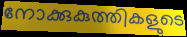
നോക്കുകുത്തികളുടെ